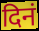
दिनं